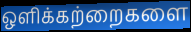
ஒளிக்கற்றைகளை